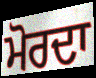
ਮੋਰਦਾ